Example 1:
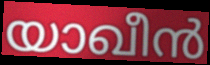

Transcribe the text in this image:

യാഖീൻ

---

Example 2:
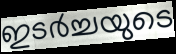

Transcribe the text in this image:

ഇടർച്ചയുടെ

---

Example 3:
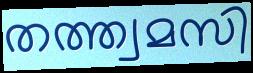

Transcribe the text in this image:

തത്ത്വമസി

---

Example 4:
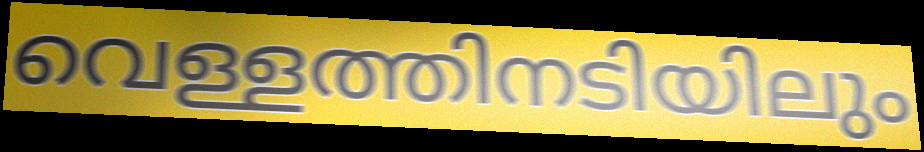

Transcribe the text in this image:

വെള്ളത്തിനടിയിലും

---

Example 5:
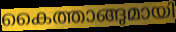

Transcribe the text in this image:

കൈത്താങ്ങുമായി